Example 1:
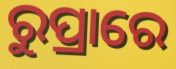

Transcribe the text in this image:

ରୁପ୍ରାରେ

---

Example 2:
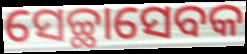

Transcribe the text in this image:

ସେଚ୍ଛାସେବକ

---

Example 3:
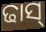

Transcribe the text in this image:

ଢାସ୍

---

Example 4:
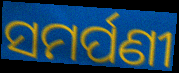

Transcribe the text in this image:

ସମର୍ପଣୀ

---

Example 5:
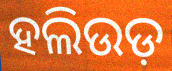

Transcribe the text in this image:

ହଲିଉଡ଼